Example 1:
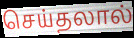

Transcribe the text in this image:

செய்தலால்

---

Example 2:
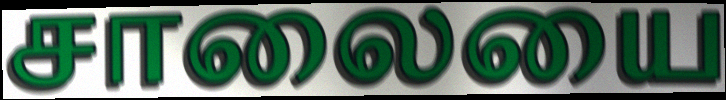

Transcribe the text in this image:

சாலையை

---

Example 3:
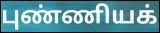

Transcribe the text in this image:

புண்ணியக்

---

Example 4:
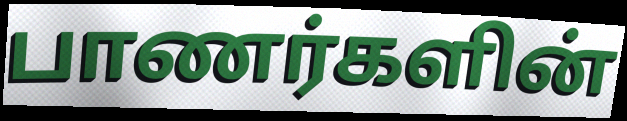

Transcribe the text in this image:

பாணர்களின்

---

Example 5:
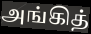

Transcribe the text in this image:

அங்கித்